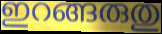
ഇറങ്ങരുതു